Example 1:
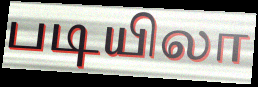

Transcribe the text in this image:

படியிலா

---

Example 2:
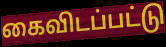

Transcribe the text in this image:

கைவிடப்பட்டு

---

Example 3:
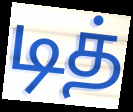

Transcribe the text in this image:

டித்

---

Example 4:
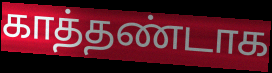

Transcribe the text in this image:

காத்தண்டாக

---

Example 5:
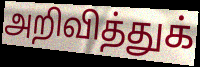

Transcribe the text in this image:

அறிவித்துக்